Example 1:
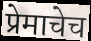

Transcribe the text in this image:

प्रेमाचेच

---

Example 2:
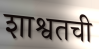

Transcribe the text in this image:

शाश्वतची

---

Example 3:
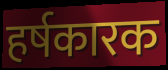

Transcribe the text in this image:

हर्षकारक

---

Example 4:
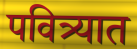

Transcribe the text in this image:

पवित्र्यात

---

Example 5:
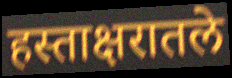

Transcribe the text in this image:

हस्ताक्षरातले